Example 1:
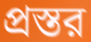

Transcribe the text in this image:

প্রস্তর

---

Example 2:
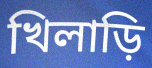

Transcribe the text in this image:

খিলাড়ি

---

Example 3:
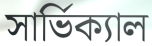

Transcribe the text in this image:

সার্ভিক্যাল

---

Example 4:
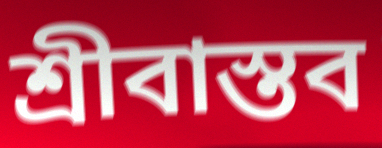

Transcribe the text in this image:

শ্রীবাস্তব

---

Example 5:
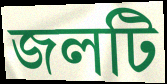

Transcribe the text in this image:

জলটি